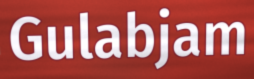
Gulabjam